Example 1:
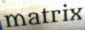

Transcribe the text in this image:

matrix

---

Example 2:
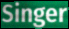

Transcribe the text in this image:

Singer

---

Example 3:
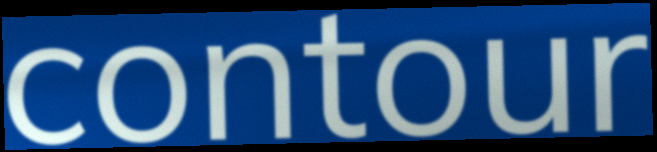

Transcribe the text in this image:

contour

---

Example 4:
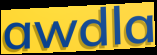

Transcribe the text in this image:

awdla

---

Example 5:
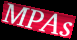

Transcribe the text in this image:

MPAs